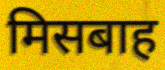
मिसबाह